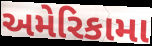
અમેરિકામા